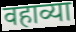
वहाव्या